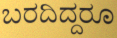
ಬರದಿದ್ದರೂ